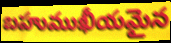
బహుముఖీయమైన